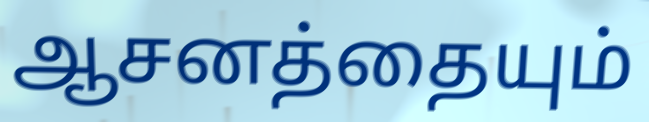
ஆசனத்தையும்